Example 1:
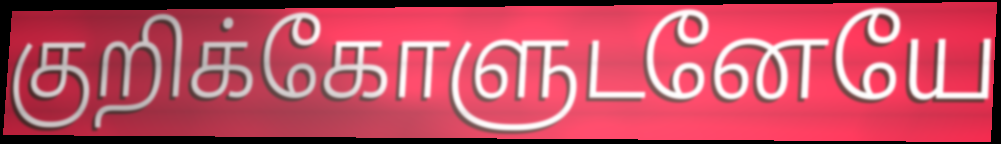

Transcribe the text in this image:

குறிக்கோளுடனேயே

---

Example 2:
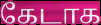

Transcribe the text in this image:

கேடாக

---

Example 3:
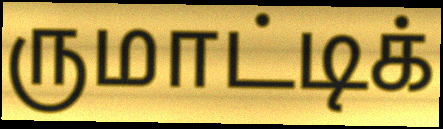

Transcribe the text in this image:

ருமாட்டிக்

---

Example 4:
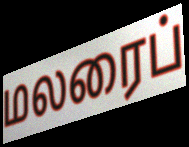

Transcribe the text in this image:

மலரைப்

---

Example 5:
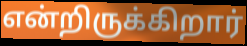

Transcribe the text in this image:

என்றிருக்கிறார்